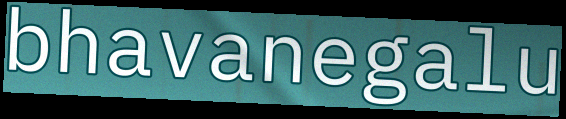
bhavanegalu